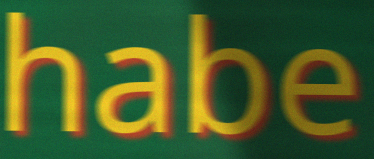
habe